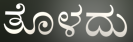
ತೊಳದು